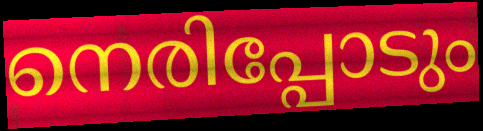
നെരിപ്പോടും